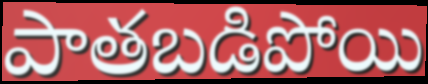
పాతబడిపోయి